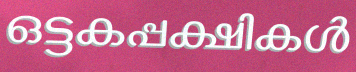
ഒട്ടകപ്പക്ഷികൾ